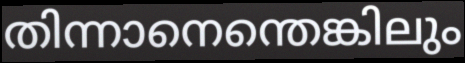
തിന്നാനെന്തെങ്കിലും